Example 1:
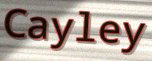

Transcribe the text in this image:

Cayley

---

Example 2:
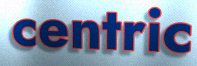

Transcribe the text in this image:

centric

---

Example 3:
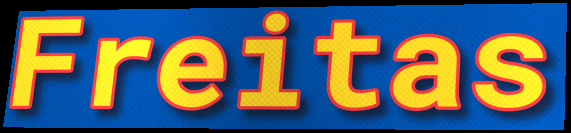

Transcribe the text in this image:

Freitas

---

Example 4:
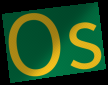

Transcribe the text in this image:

Os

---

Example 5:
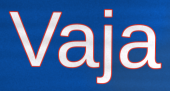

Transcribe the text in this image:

Vaja